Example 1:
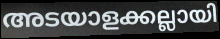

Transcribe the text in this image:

അടയാളക്കല്ലായി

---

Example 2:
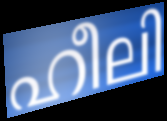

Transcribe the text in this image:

ഹീലി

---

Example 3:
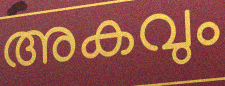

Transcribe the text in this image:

അകവും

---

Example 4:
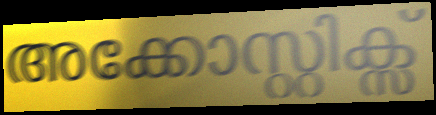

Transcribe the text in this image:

അക്കോസ്റ്റിക്സ്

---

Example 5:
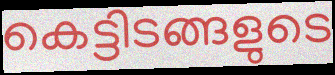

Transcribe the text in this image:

കെട്ടിടങ്ങളുടെ